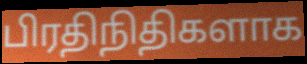
பிரதிநிதிகளாக